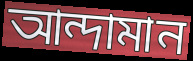
আন্দামান